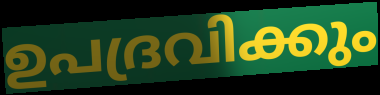
ഉപദ്രവിക്കും